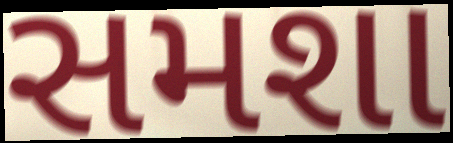
સમશા